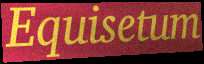
Equisetum